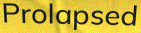
Prolapsed